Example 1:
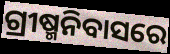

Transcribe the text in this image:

ଗ୍ରୀଷ୍ମନିବାସରେ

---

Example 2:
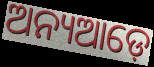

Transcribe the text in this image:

ଅନ୍ୟଆଡ଼େ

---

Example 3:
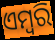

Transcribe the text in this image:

ଏମ୍ବରି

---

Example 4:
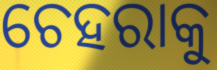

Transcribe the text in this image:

ଚେହରାକୁ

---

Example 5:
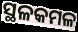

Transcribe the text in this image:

ସ୍ଥଳକମଳ